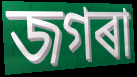
জগৰা